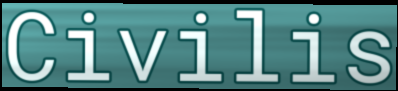
Civilis